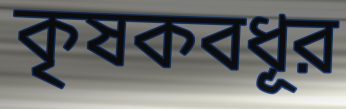
কৃষকবধূর